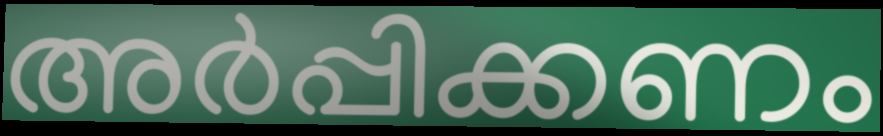
അർപ്പിക്കണം